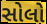
સોલો